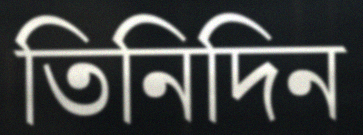
তিনিদিন